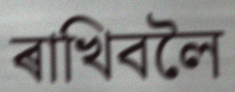
ৰাখিবলৈ